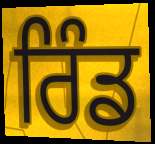
ਰਿੰਡ